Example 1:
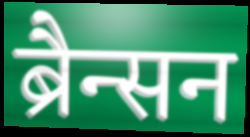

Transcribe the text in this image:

ब्रैन्सन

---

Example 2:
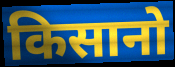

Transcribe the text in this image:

किसानो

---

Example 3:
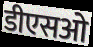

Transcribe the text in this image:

डीएसओ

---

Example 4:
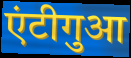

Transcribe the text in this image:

एंटीगुआ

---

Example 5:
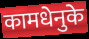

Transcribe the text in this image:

कामधेनुके